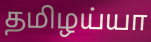
தமிழய்யா